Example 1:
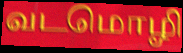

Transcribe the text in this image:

வடமொழி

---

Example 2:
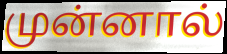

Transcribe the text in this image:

முன்னால்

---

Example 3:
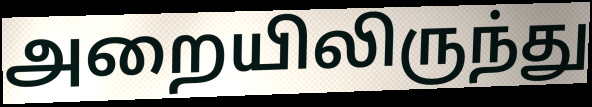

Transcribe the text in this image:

அறையிலிருந்து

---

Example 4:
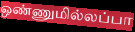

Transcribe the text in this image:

ஒண்ணுமில்லப்பா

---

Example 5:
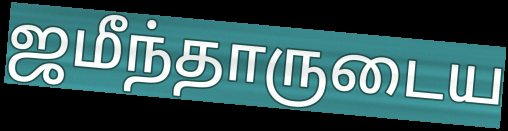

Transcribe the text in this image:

ஜமீந்தாருடைய